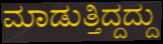
ಮಾಡುತ್ತಿದ್ದದ್ದು